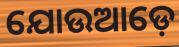
ଯୋଉଆଡ଼େ